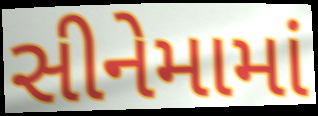
સીનેમામાં